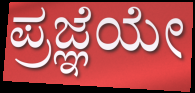
ಪ್ರಜ್ಞೆಯೇ